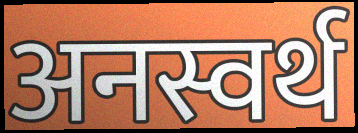
अनस्वर्थ